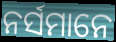
ନର୍ସମାନେ